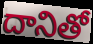
దానితో